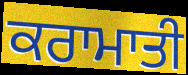
ਕਰਾਮਾਤੀ